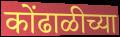
कोंढाळीच्या